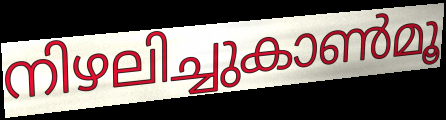
നിഴലിച്ചുകാൺമൂ